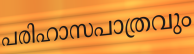
പരിഹാസപാത്രവും